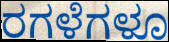
ರಗಳೆಗಳೂ